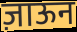
ज़ाऊन